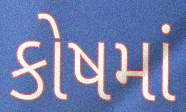
કોષમાં